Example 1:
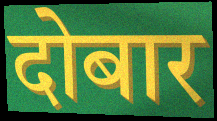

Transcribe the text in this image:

दोबार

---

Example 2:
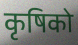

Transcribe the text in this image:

कृषिको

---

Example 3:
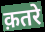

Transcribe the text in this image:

क़तरे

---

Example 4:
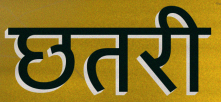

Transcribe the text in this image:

छतरी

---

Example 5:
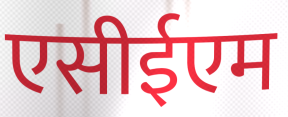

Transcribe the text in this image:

एसीईएम